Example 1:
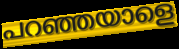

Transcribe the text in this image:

പറഞ്ഞയാളെ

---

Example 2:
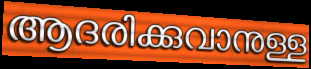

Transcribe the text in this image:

ആദരിക്കുവാനുള്ള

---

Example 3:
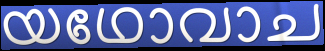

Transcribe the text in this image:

യഥോവാച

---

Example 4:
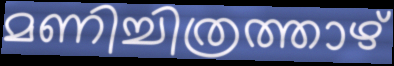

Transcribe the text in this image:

മണിച്ചിത്രത്താഴ്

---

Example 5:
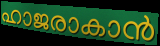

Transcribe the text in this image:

ഹാജരാകാൻ